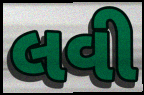
લવી